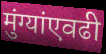
मुंग्यांएवढी